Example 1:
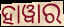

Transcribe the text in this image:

ହାୱାର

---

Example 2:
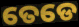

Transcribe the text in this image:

ତେଡେ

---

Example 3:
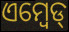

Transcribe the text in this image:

ଏମ୍ବେଡ୍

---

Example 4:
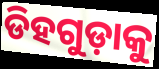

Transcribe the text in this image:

ଡିହଗୁଡ଼ାକୁ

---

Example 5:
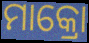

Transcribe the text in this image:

ମାକ୍ରୋ